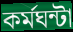
কর্মঘন্টা